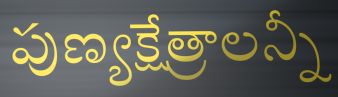
పుణ్యక్షేత్రాలన్నీ